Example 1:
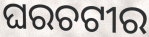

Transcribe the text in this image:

ଘରଚଟୀର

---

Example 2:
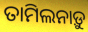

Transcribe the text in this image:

ତାମିଲନାଡ଼ୁ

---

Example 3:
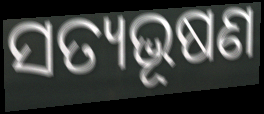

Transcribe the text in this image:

ସତ୍ୟଭୂଷଣ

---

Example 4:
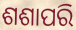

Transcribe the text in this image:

ଶଶାପରି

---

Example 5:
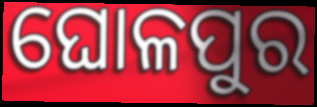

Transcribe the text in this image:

ଘୋଳପୁର